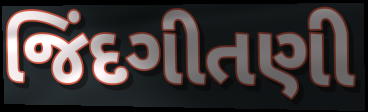
જિંદગીતણી